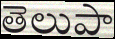
తెలుపా